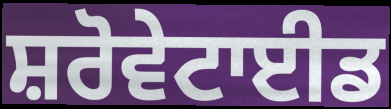
ਸ਼ਰੋਵੇਟਾਈਡ